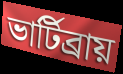
ভার্টিব্রায়